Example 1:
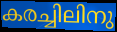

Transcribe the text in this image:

കരച്ചിലിനു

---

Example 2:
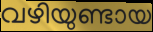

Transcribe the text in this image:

വഴിയുണ്ടായ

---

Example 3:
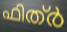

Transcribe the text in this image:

ഫിത്ർ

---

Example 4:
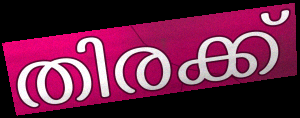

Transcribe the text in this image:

തിരക്ക്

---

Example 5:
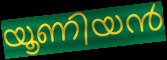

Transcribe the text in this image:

യൂണിയൻ